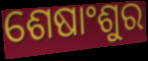
ଶେଷାଂଶୁର